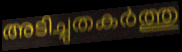
അടിച്ചുതകർത്തു